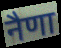
नैणा